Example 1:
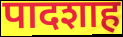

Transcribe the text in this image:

पादशाह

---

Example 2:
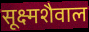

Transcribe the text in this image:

सूक्ष्मशैवाल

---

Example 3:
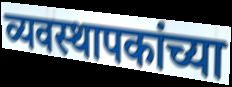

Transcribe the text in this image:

व्यवस्थापकांच्या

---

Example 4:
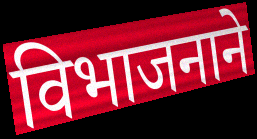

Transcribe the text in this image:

विभाजनाने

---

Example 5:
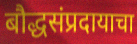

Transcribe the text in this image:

बौद्धसंप्रदायाचा